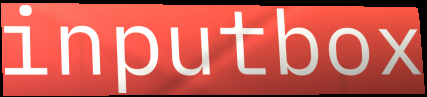
inputbox